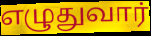
எழுதுவார்